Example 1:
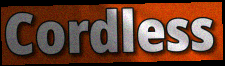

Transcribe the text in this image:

Cordless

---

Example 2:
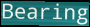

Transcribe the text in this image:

Bearing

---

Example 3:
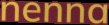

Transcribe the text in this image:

nenna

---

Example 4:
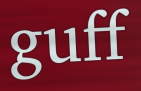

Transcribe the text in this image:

guff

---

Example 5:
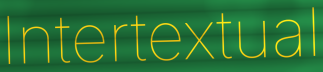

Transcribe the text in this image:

Intertextual